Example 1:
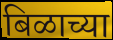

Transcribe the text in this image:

बिळाच्या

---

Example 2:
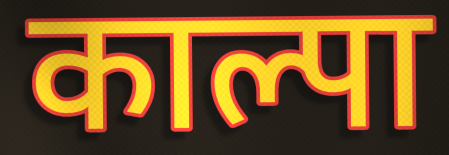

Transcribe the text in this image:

काल्पा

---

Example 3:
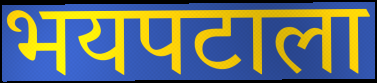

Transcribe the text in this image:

भयपटाला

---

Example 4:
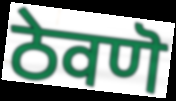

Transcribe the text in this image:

ठेवणॆ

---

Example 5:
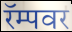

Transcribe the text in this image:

रॅम्पवर